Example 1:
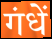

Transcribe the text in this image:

गंधें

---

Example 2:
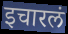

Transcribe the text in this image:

इचारलं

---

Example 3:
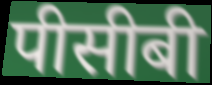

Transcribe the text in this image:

पीसीबी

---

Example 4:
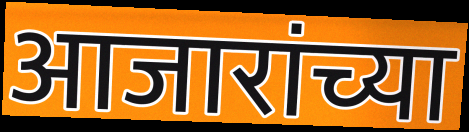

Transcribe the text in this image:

आजारांच्या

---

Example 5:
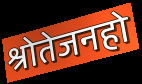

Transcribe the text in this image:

श्रोतेजनहो